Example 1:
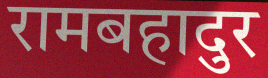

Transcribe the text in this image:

रामबहादुर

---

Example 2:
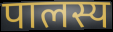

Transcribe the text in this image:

पालस्य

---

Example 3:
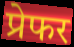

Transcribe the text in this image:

प्रेफर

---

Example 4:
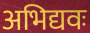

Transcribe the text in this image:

अभिद्यवः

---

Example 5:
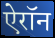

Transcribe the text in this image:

ऐरॉन